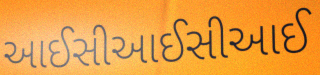
આઈસીઆઈસીઆઈ